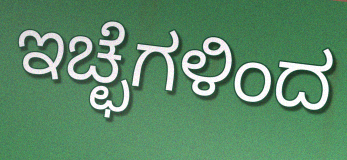
ಇಚ್ಛೆಗಳಿಂದ